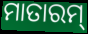
ମାତାରମ୍